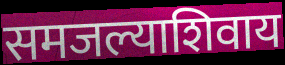
समजल्याशिवाय